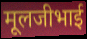
मूलजीभाई